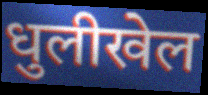
धुलीखेल